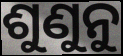
ଶୁଣୁନୁ